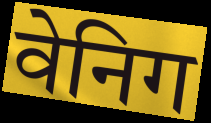
वेनिग